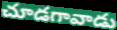
చూడగావాడు